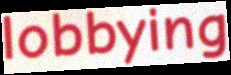
lobbying